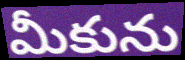
మీకును